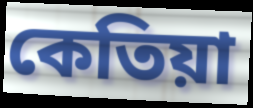
কেতিয়া